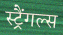
स्ट्रैंगल्स